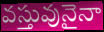
వస్తువునైనా